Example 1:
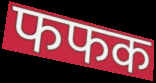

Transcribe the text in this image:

फफक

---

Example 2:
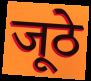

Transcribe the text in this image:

जूठे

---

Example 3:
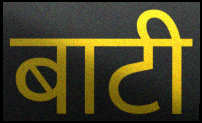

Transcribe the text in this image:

बाटी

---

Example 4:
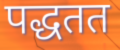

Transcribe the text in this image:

पद्धतत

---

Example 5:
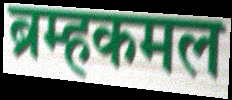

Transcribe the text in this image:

ब्रम्हकमल